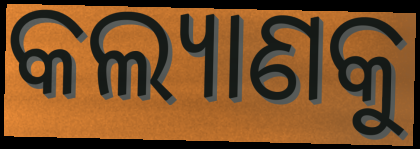
କଲ୍ୟାଣକୁ